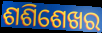
ଶଶିଶେଖର